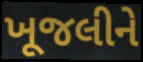
ખૂજલીને